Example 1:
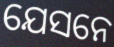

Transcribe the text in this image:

ଯେସନେ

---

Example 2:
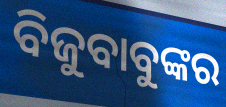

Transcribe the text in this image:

ବିଜୁବାବୁଙ୍କର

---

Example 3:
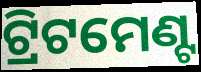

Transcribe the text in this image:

ଟ୍ରିଟମେଣ୍ଟ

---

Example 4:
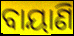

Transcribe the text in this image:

ବାୟାଣି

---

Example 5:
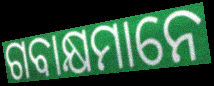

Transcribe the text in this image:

ଗବାକ୍ଷମାନେ